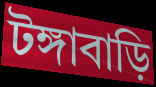
টঙ্গাবাড়ি